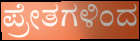
ಪ್ರೇತಗಳಿಂದ